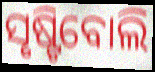
ସୃଷ୍ଟିବୋଲି